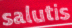
salutis